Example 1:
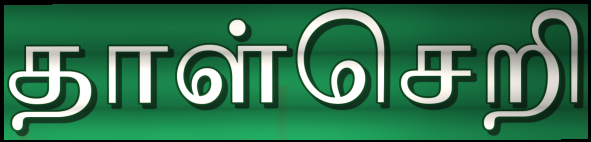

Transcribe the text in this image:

தாள்செறி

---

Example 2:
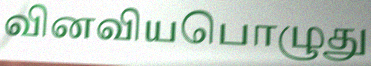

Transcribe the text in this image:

வினவியபொழுது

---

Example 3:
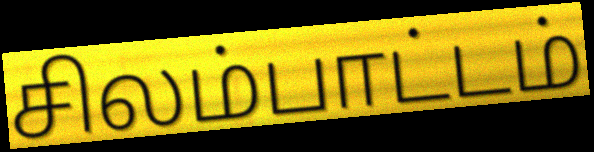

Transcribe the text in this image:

சிலம்பாட்டம்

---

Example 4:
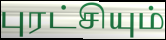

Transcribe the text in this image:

புரட்சியும்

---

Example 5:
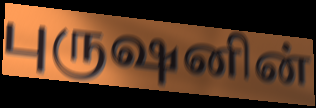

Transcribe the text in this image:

புருஷனின்